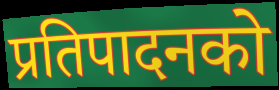
प्रतिपादनको